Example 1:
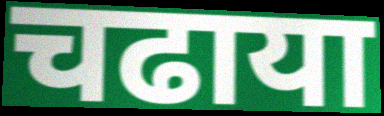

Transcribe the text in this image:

चढाया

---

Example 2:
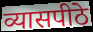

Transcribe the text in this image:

व्यासपीठे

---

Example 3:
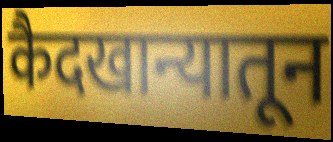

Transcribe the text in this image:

कैदखान्यातून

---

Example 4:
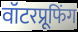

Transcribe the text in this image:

वॉटरप्रूफिंग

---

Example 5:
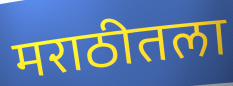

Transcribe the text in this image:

मराठीतला